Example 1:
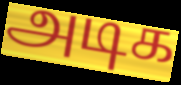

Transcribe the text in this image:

அடிக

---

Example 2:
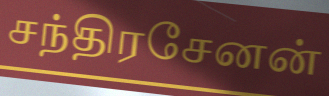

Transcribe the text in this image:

சந்திரசேனன்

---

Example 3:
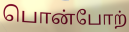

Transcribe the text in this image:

பொன்போற்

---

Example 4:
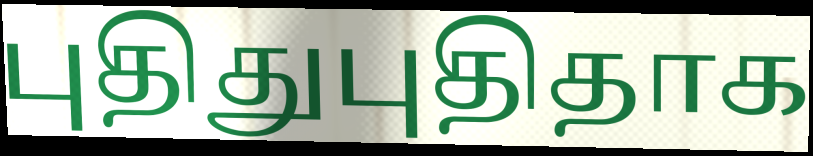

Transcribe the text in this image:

புதிதுபுதிதாக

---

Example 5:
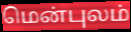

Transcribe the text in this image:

மென்புலம்